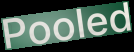
Pooled